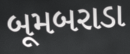
બૂમબરાડા